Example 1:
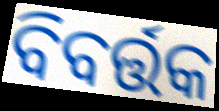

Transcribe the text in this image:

ବିବର୍ତ୍ତକ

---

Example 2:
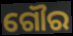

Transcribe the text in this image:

ଗୌର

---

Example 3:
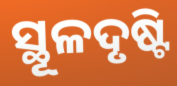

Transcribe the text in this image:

ସ୍ଥୂଳଦୃଷ୍ଟି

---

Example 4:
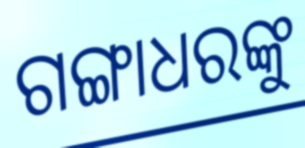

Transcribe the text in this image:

ଗଙ୍ଗାଧରଙ୍କୁ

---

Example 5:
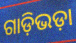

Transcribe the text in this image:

ଗାଡ଼ିଭଡ଼ା